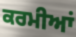
ਕਰਮੀਆਂ